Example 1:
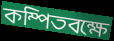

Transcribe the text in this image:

কম্পিতবক্ষে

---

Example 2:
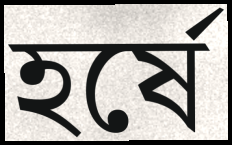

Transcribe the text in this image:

হর্ষে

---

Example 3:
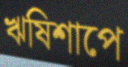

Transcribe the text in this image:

ঋষিশাপে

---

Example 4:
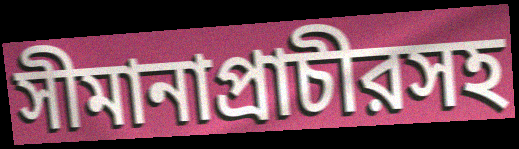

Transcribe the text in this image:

সীমানাপ্রাচীরসহ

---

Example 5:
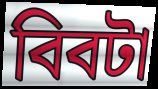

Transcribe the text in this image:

বিবটা